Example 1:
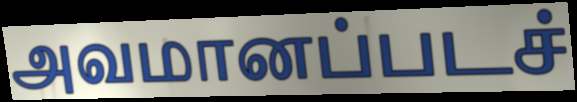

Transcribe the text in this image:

அவமானப்படச்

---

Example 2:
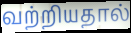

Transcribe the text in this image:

வற்றியதால்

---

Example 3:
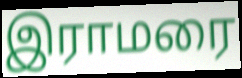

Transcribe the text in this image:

இராமரை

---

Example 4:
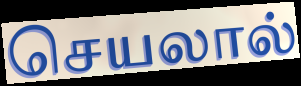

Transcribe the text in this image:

செயலால்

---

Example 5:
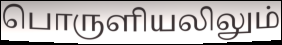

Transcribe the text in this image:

பொருளியலிலும்